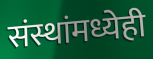
संस्थांमध्येही